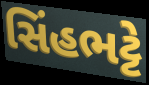
સિંહભટ્ટે